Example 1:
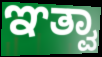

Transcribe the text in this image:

ಞತ್ವಾ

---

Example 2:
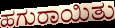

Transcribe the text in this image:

ಹಗುರಾಯಿತು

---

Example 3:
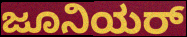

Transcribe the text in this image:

ಜೂನಿಯರ್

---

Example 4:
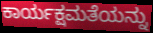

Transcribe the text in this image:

ಕಾರ್ಯಕ್ಷಮತೆಯನ್ನು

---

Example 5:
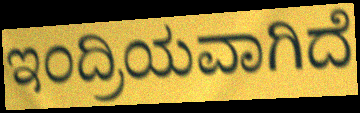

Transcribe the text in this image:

ಇಂದ್ರಿಯವಾಗಿದೆ